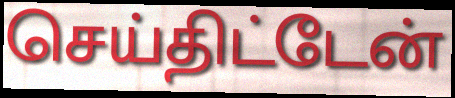
செய்திட்டேன்